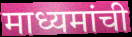
माध्यमांची